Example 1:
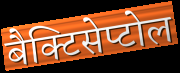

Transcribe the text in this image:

बैक्टिसेप्टोल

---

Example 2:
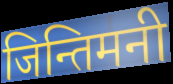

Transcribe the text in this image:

जिन्तिमनी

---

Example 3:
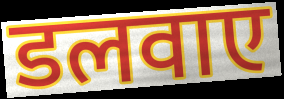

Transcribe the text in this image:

डलवाए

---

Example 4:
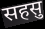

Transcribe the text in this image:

सहसु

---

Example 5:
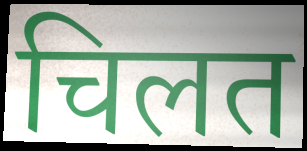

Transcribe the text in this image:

चिलत